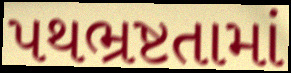
પથભ્રષ્ટતામાં